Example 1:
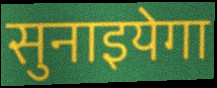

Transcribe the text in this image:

सुनाइयेगा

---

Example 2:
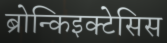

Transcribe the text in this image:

ब्रोन्किइक्टेसिस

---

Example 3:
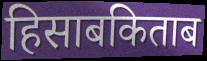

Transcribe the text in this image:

हिसाबकिताब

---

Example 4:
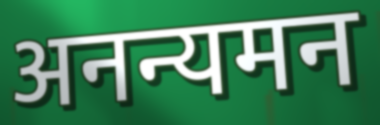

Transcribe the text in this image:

अनन्यमन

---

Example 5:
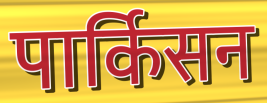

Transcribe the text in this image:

पार्किसन